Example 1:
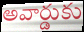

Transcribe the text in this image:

అవార్డుకు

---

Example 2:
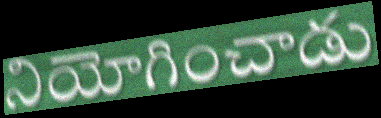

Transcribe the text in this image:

నియోగించాడు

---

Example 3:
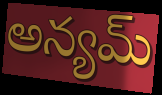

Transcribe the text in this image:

అన్యమ్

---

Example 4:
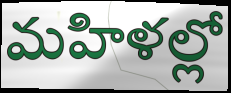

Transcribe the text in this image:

మహిళల్లో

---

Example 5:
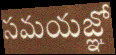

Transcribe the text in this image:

సమయజ్ఞో